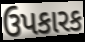
ઉપકારક